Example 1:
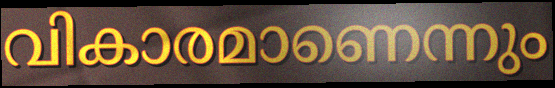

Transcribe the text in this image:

വികാരമാണെന്നും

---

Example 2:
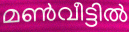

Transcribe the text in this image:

മൺവീട്ടിൽ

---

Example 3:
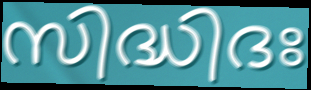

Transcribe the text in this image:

സിദ്ധിദഃ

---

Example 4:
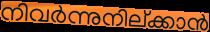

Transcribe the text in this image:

നിവർന്നുനില്ക്കാൻ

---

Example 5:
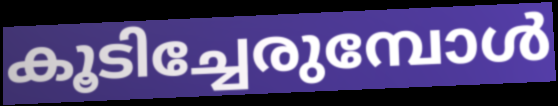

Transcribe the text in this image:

കൂടിച്ചേരുമ്പോൾ